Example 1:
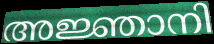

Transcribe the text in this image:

അജ്ഞാനി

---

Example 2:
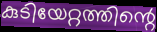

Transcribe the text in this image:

കുടിയേറ്റത്തിന്റെ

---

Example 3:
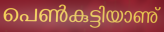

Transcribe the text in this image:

പെൺകുട്ടിയാണു്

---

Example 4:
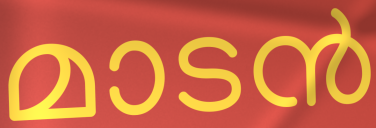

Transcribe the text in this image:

മാടൻ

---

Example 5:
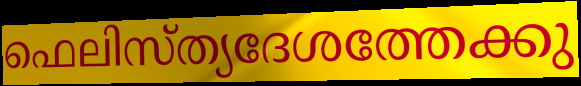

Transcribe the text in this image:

ഫെലിസ്ത്യദേശത്തേക്കു